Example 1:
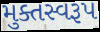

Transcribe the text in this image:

મુક્તસ્વરૂપ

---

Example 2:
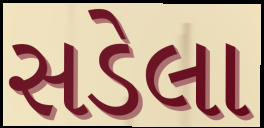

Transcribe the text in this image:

સડેલા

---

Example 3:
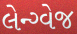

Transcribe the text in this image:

લેન્ગ્વેજ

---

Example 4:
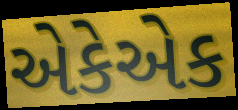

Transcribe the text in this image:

એકેએક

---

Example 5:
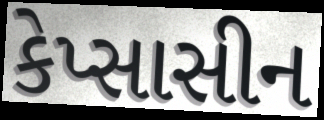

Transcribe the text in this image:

કેપ્સાસીન